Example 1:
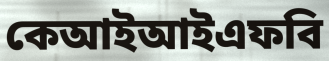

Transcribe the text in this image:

কেআইআইএফবি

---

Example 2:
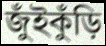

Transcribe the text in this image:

জুঁইকুঁড়ি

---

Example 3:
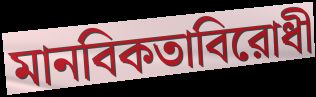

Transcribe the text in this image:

মানবিকতাবিরোধী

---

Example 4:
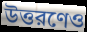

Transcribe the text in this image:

উত্তরণেও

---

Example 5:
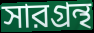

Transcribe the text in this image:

সারগ্রন্থ